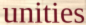
unities